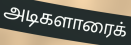
அடிகளாரைக்